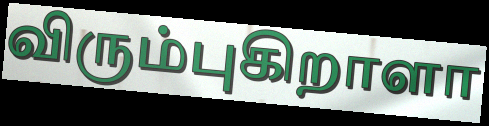
விரும்புகிறாளா